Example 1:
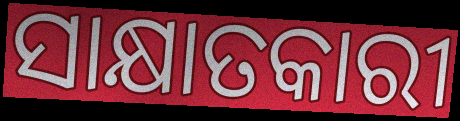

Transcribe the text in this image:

ସାକ୍ଷାତକାରୀ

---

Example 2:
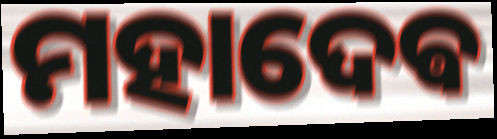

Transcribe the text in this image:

ମହାଦେଵ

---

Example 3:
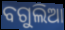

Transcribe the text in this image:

ବଗୁଲିଆ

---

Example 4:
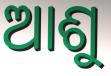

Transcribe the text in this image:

ଆଶୁ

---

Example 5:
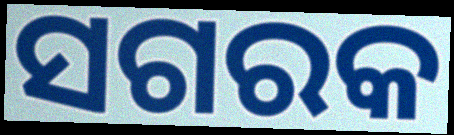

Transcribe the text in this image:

ସଗରକ